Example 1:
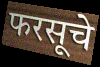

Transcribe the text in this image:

फरसूचे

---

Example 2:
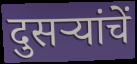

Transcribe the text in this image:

दुसऱ्यांचें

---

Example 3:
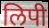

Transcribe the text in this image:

लिपी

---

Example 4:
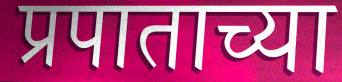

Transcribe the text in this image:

प्रपाताच्या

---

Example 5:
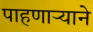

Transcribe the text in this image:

पाहणार्‍याने